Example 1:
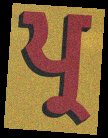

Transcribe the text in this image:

ਪ੍ਰ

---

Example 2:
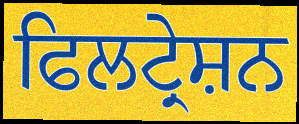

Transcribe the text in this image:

ਫਿਲਟ੍ਰੇਸ਼ਨ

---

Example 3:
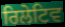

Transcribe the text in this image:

ਰਿਲੇਟਿਵ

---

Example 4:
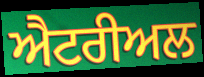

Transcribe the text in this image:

ਐਟਰੀਅਲ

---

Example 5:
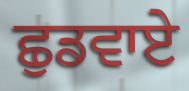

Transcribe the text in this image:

ਛੁਡਵਾਏ